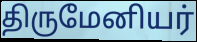
திருமேனியர்